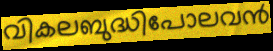
വികലബുദ്ധിപോലവൻ